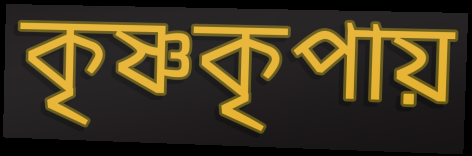
কৃষ্ণকৃপায়